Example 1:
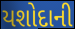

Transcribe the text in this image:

યશોદાની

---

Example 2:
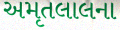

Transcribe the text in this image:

અમૃતલાલના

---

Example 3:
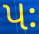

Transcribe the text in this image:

પઃ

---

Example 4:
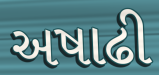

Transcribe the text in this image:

અષાઢી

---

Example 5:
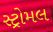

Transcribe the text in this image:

સ્ટ્રોમલ